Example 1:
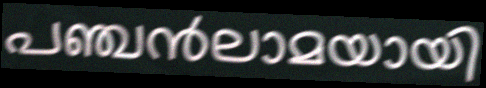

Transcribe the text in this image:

പഞ്ചൻലാമയായി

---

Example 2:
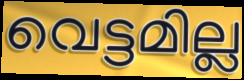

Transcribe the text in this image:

വെട്ടമില്ല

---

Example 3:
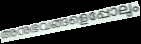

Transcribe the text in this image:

അനുഭവങ്ങളെപ്പോലും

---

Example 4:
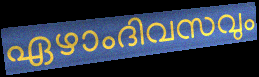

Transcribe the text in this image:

ഏഴാംദിവസവും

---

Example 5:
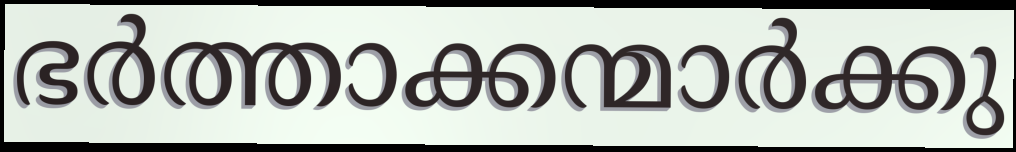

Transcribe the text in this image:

ഭർത്താക്കന്മാർക്കു